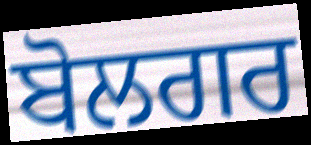
ਬੋਲਗਰ